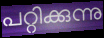
പറ്റിക്കുന്നു